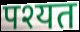
पश्यत